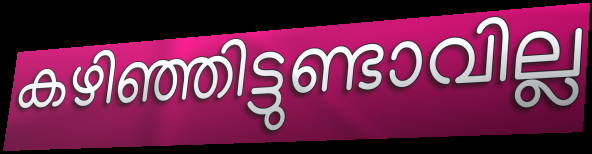
കഴിഞ്ഞിട്ടുണ്ടാവില്ല